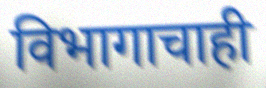
विभागाचाही